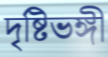
দৃষ্টিভঙ্গী